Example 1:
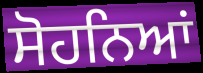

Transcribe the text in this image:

ਸੋਹਨਿਆਂ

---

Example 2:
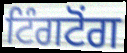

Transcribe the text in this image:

ਟਿੰਗਟੋਂਗ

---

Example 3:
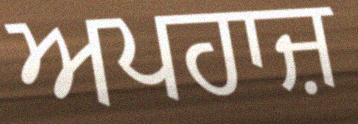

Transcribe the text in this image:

ਅਪਹਾਜ਼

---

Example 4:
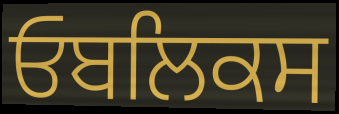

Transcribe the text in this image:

ਓਬਲਿਕਸ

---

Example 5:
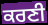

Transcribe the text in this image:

ਕਰਣੀ